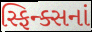
સ્ફિન્ક્સનાં